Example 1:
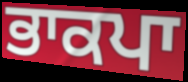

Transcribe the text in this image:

ਭਾਕਪਾ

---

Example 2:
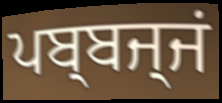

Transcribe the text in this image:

ਪਬ੍ਬਜ੍ਜਂ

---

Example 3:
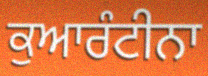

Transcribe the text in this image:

ਕੁਆਰੰਟੀਨਾ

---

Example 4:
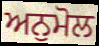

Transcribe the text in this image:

ਅਨੁਮੋਲ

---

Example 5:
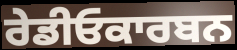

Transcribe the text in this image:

ਰੇਡੀਓਕਾਰਬਨ